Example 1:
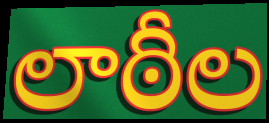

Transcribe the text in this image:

లాఠీల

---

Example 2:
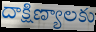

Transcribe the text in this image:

దాక్షిణ్యాలకు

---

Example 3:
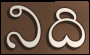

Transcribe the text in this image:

నిది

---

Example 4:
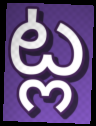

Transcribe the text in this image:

ట్ల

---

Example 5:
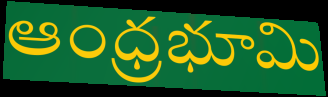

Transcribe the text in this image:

ఆంధ్రభూమి